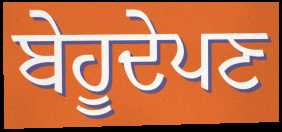
ਬੇਹੂਦੇਪਣ